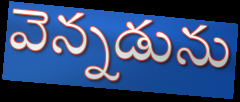
వెన్నడును